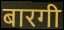
बारगी